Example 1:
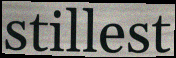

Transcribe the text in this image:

stillest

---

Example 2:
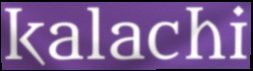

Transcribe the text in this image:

kalachi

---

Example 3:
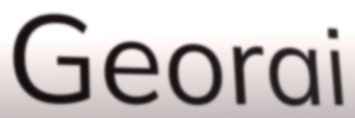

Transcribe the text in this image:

Georai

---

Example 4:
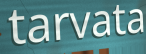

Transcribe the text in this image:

tarvata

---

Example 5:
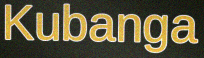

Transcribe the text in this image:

Kubanga